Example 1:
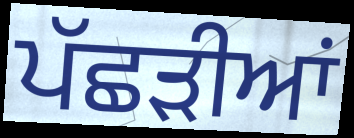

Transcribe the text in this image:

ਪੱਛੜੀਆਂ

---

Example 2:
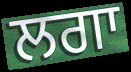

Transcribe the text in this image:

ਲਗਾ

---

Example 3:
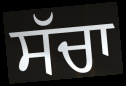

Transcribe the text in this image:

ਸੱਚਾ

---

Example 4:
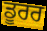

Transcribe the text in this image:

ਡੂਰਰ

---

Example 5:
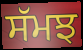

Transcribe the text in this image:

ਸੱਮਝ